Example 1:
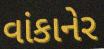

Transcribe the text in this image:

વાંકાનેર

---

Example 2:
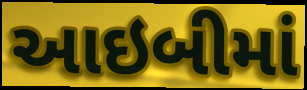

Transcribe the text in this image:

આઇબીમાં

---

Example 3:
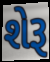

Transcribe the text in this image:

શેરૂ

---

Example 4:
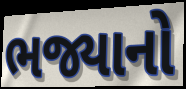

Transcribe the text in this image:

ભજ્યાનો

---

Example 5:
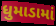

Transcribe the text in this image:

ધુમાડામાં